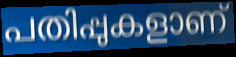
പതിപ്പുകളാണ്